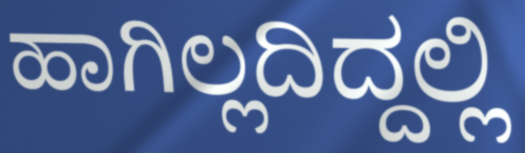
ಹಾಗಿಲ್ಲದಿದ್ದಲ್ಲಿ